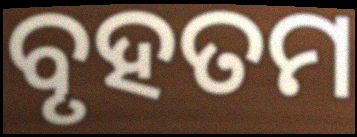
ବୃହତମ